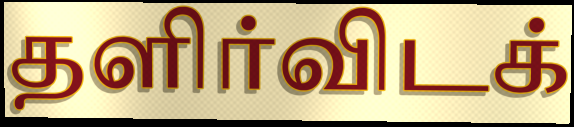
தளிர்விடக்